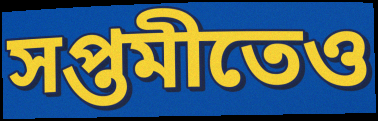
সপ্তমীতেও